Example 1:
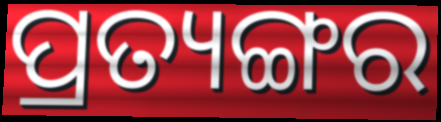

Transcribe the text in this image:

ପ୍ରତ୍ୟଙ୍ଗର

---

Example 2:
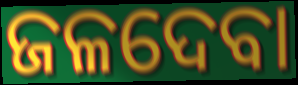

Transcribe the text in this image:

ଜଳଦେବା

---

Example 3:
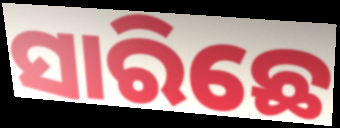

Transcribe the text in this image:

ସାରିଛେ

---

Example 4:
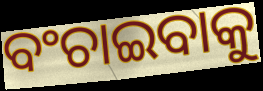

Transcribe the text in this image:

ବଂଚାଇବାକୁ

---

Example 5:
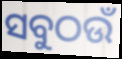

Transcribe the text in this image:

ସବୁଠଉଁ